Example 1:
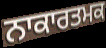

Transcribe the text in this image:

ਨਾਕਾਰਤਮਕ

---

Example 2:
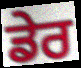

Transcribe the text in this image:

ਡੇਰ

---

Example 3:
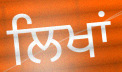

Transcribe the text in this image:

ਲਿਖਾਂ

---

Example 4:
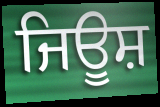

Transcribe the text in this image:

ਜਿਊਸ਼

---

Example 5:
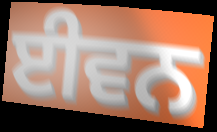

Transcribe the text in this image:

ਈਵਨ